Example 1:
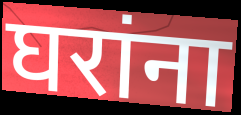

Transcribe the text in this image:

घरांना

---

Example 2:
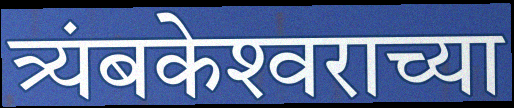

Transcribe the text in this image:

त्र्यंबकेश्‍वराच्या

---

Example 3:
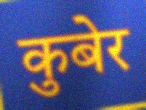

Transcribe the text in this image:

कुबेर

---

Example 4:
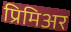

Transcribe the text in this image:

प्रिमिअर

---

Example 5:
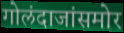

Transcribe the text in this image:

गोलंदाजांसमोर